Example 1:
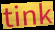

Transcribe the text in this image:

tink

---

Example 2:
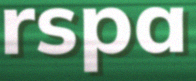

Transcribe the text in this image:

rspa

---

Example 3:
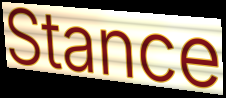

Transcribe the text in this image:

Stance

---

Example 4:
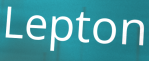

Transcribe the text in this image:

Lepton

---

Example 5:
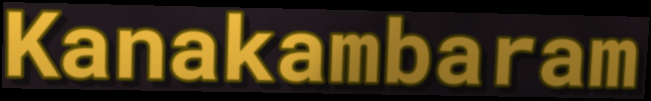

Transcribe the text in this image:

Kanakambaram